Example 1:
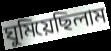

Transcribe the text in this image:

ঘুমিয়েছিলাম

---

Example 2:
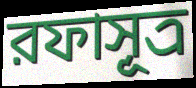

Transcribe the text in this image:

রফাসূত্র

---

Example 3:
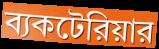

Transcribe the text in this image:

ব্যকটেরিয়ার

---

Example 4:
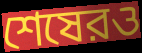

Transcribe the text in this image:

শেষেরও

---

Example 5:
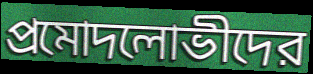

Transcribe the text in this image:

প্রমোদলোভীদের